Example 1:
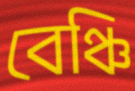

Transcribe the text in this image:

বেঞ্চি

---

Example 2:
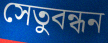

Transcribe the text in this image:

সেতুবন্ধন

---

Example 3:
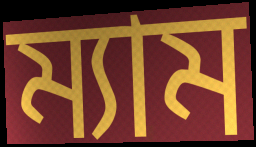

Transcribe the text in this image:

ম্যাম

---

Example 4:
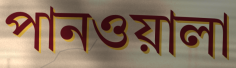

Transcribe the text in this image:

পানওয়ালা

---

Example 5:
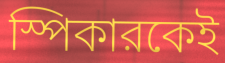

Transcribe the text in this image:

স্পিকারকেই